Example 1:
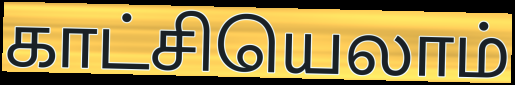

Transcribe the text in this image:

காட்சியெலாம்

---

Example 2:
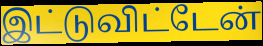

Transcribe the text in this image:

இட்டுவிட்டேன்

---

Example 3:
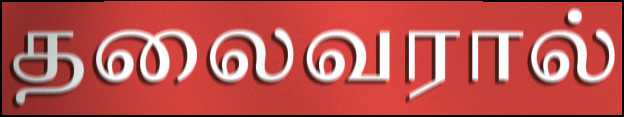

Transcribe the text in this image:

தலைவரால்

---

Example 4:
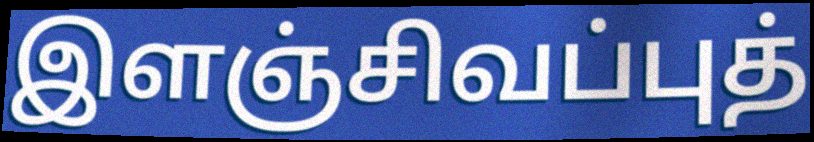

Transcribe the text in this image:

இளஞ்சிவப்புத்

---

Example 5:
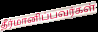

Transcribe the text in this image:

தீர்மானிப்பவர்கள்